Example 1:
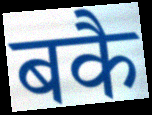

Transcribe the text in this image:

बकै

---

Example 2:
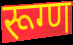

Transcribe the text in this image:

रूग्ण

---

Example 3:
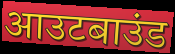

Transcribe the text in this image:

आउटबाउंड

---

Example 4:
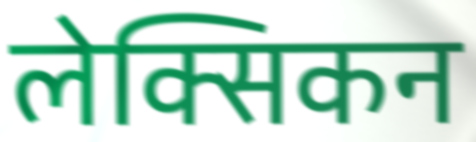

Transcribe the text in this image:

लेक्सिकन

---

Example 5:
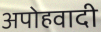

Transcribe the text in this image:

अपोहवादी